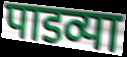
पाडव्या